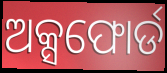
ଅକ୍ସଫୋର୍ଡ